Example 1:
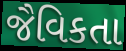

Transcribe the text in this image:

જૈવિકતા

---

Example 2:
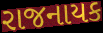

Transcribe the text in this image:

રાજનાયક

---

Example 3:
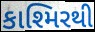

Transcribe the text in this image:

કાશ્મિરથી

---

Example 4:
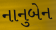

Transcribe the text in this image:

નાનુબેન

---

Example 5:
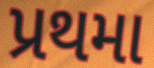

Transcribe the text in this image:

પ્રથમા